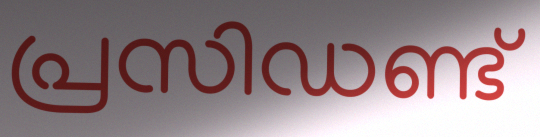
പ്രസിഡണ്ട്